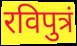
रविपुत्रं